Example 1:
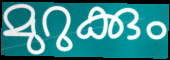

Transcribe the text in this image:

മുറുക്കും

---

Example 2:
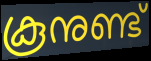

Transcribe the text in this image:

കൂനുണ്ട്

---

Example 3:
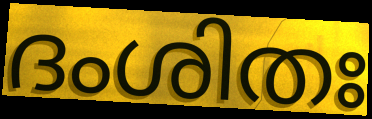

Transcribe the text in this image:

ദംശിതഃ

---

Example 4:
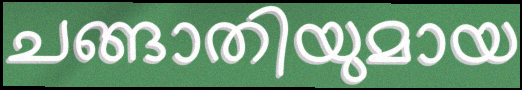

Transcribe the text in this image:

ചങ്ങാതിയുമായ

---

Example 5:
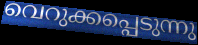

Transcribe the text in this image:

വെറുക്കപ്പെടുന്നു